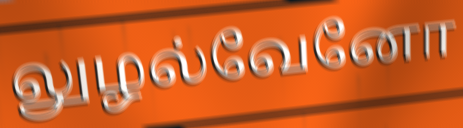
லுழல்வேனோ